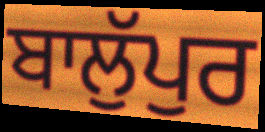
ਬਾਲੁੱਪੁਰ